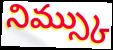
నిమ్స్కు